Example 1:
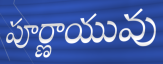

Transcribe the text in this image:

పూర్ణాయువు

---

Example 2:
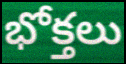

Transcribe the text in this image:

భోక్తలు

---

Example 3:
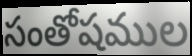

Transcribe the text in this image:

సంతోషముల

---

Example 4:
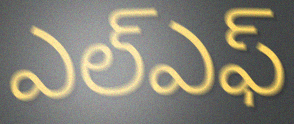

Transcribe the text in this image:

ఎల్ఎఫ్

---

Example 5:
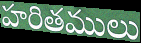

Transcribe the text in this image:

హరితములు